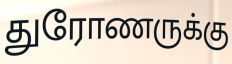
துரோணருக்கு